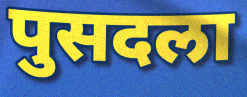
पुसदला